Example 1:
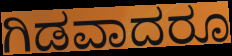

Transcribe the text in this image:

ಗಿಡವಾದರೂ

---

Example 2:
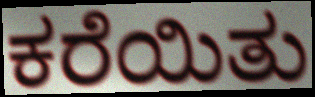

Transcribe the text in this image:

ಕರೆಯಿತು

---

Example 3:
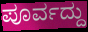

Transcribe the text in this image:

ಪೂರ್ವದ್ದು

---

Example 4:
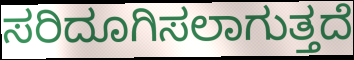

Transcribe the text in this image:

ಸರಿದೂಗಿಸಲಾಗುತ್ತದೆ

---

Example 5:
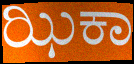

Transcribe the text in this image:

ಝಿಕಾ